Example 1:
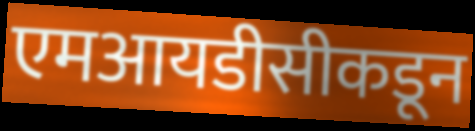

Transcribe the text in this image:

एमआयडीसीकडून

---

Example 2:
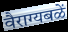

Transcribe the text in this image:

वैराग्यबळें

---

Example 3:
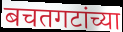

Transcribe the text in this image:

बचतगटांच्या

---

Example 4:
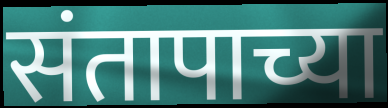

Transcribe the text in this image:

संतापाच्या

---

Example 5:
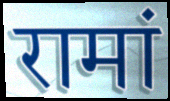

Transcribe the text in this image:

रामां